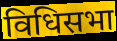
विधिसभा